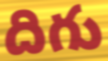
దిగు